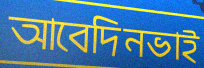
আবেদিনভাই